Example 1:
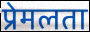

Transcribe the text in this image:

प्रेमलता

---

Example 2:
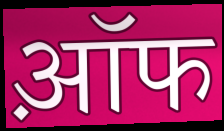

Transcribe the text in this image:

ऑ़फ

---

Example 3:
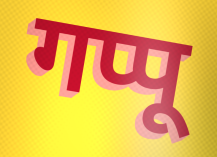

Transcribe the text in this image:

गप्पू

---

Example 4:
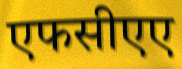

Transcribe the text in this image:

एफसीएए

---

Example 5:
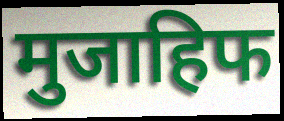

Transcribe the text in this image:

मुजाहिफ